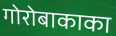
गोरोबाकाका